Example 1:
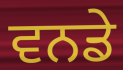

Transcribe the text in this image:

ਵਨਡੇ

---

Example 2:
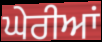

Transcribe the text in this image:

ਘੇਰੀਆਂ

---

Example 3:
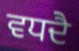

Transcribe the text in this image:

ਵਧਦੈ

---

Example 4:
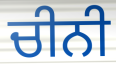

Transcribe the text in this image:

ਚੀਨੀ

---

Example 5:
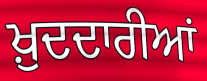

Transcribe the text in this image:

ਖ਼ੁਦਦਾਰੀਆਂ